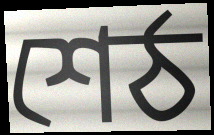
শেঠ